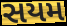
સયમ